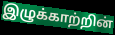
இழுக்காற்றின்